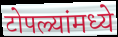
टोपल्यांमध्ये